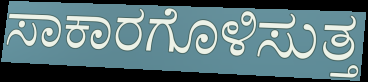
ಸಾಕಾರಗೊಳಿಸುತ್ತ